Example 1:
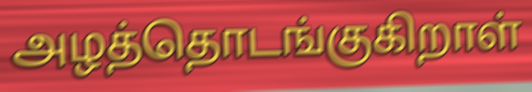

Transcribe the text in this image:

அழத்தொடங்குகிறாள்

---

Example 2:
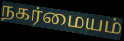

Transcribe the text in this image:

நகர்மையம்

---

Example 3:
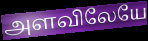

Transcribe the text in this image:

அளவிலேயே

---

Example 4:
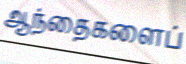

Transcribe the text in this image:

ஆந்தைகளைப்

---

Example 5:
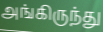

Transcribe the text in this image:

அங்கிருந்து